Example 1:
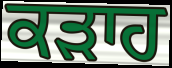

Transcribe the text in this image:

ਕੜਾਹ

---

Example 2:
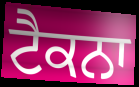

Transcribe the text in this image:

ਟੈਕਨਾ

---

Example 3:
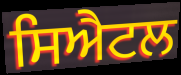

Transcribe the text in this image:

ਸਿਐਟਲ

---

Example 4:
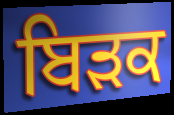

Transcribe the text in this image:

ਬਿੜਕ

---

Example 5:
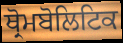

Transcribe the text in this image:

ਥ੍ਰੋਮਬੋਲਿਟਿਕ